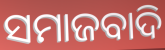
ସମାଜବାଦି